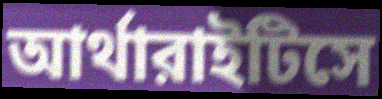
আর্থারাইটিসে